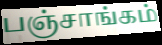
பஞ்சாங்கம்